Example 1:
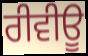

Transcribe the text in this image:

ਰੀਵੀਊ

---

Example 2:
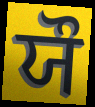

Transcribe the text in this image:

ਯੌ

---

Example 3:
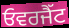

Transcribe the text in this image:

ਓਵਰਜੈੱਟ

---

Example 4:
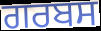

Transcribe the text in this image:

ਗਰਬਸ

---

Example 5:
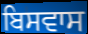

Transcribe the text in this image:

ਬਿਸਵਾਸ